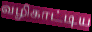
வழிகாட்டிய